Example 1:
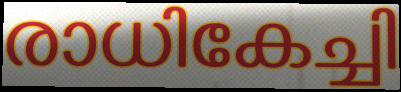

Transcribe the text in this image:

രാധികേച്ചി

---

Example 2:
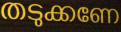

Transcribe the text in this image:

തടുക്കണേ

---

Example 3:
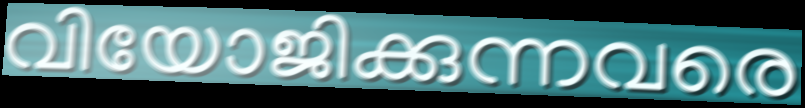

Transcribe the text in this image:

വിയോജിക്കുന്നവരെ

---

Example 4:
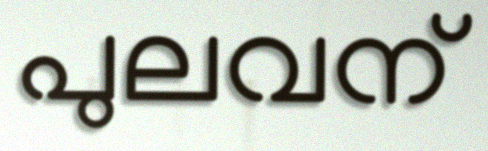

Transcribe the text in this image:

പുലവന്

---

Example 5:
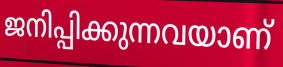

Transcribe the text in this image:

ജനിപ്പിക്കുന്നവയാണ്